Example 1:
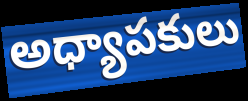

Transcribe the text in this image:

అధ్యాపకులు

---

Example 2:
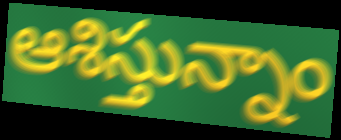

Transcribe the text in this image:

ఆశిస్తున్నాం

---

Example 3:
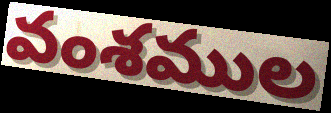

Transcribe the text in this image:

వంశముల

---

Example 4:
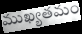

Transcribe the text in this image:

ముఖ్యతమం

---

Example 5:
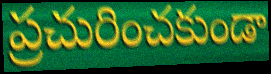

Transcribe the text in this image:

ప్రచురించకుండా